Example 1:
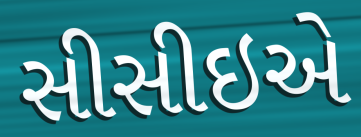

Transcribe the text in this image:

સીસીઇએ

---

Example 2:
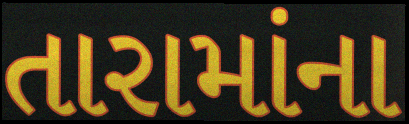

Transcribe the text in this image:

તારામાંના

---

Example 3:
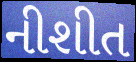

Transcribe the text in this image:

નીશીત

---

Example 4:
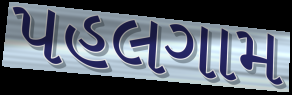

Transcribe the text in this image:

પહલગામ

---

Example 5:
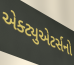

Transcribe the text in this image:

એક્ટ્યુએટર્સનો